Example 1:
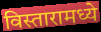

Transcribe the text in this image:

विस्तारामध्ये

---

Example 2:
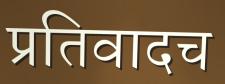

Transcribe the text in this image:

प्रतिवादच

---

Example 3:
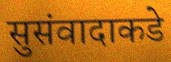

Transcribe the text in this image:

सुसंवादाकडे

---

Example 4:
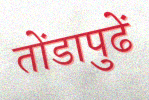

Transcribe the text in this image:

तोंडापुढें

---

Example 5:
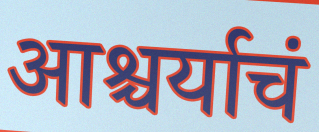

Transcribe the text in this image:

आश्चर्याचं